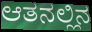
ಆತನಲ್ಲಿನ